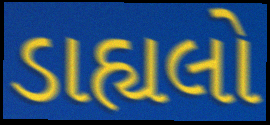
ડાહ્યલો